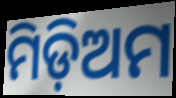
ମିଡ଼ିଅମ